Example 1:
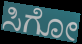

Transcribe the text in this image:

ಸಿಗೋ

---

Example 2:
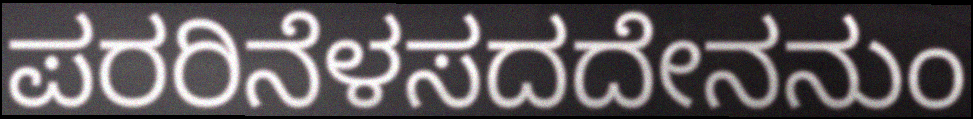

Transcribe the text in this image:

ಪರರಿನೆಳಸದದೇನನುಂ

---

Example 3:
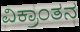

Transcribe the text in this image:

ವಿಕ್ರಾಂತನ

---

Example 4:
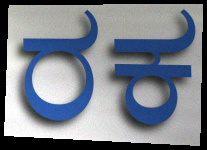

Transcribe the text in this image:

ರಕ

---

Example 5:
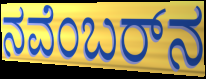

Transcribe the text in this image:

ನವೆಂಬರ್‌ನ